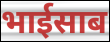
भाईसाब